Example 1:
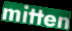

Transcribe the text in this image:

mitten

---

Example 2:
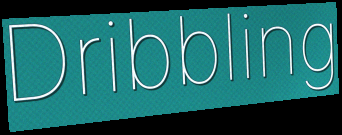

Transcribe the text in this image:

Dribbling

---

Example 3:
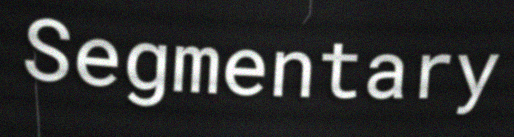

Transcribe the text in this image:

Segmentary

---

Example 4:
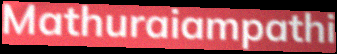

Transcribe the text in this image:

Mathuraiampathi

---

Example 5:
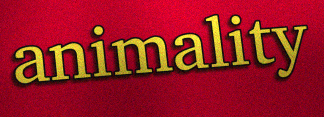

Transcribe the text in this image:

animality